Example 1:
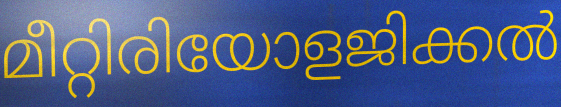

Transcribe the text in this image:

മീറ്റിരിയോളജിക്കൽ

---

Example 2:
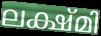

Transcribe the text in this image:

ലക്ഷ്‌മി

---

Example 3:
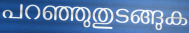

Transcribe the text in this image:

പറഞ്ഞുതുടങ്ങുക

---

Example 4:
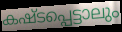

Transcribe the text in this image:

കഷ്ടപ്പെട്ടാലും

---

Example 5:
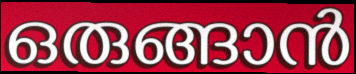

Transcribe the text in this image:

ഒരുങ്ങാൻ